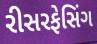
રીસરફેસિંગ